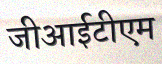
जीआईटीएम